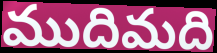
ముదిమది